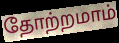
தோற்றமாம்